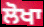
ਲੋਖਾ